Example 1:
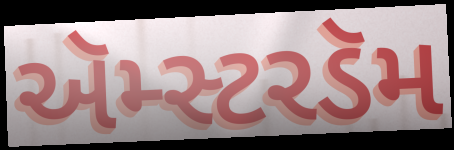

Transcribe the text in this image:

ઍમ્સ્ટરડૅમ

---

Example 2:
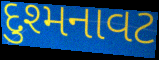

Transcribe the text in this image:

દુશ્મનાવટ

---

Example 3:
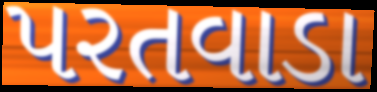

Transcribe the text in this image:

પરતવાડા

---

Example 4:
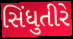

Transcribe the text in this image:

સિંધુતીરે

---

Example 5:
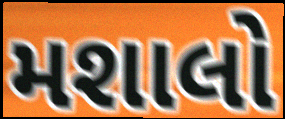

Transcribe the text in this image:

મશાલો